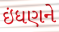
ઇંધણને